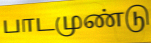
பாடமுண்டு